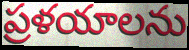
ప్రళయాలను